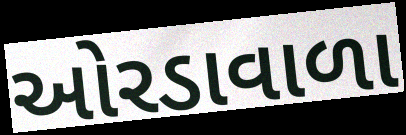
ઓરડાવાળા